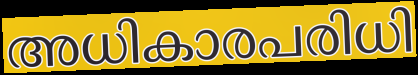
അധികാരപരിധി